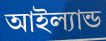
আইল্যান্ড